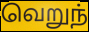
வெறுந்